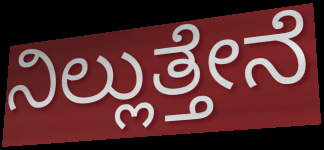
ನಿಲ್ಲುತ್ತೇನೆ